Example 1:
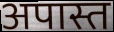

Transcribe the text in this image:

अपास्‍त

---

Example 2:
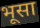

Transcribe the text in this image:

भूसा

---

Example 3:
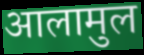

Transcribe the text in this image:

आलामुल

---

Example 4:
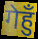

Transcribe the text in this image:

गेहुँ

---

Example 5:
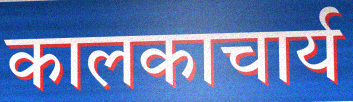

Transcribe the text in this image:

कालकाचार्य